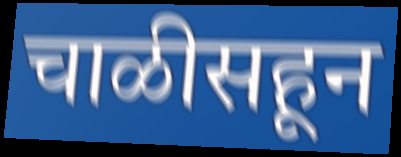
चाळीसहून